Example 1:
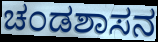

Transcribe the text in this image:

ಚಂಡಶಾಸನ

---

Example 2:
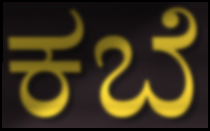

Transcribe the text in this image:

ಕಬೆ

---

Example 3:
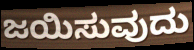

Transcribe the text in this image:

ಜಯಿಸುವುದು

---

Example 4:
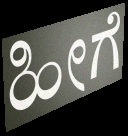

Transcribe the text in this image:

ಹೀಗೆ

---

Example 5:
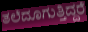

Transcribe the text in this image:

ತಲೆದೂಗುತ್ತಿದ್ದರೆ